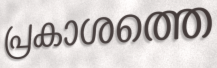
പ്രകാശത്തെ